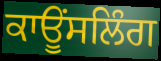
ਕਾਊਂਸਲਿੰਗ